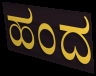
ಹಂದ